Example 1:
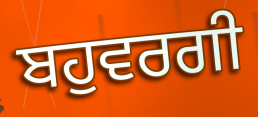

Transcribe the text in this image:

ਬਹੁਵਰਗੀ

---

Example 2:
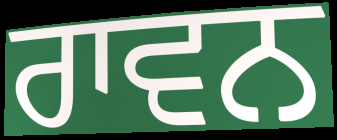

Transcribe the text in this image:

ਰਾਵਨ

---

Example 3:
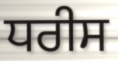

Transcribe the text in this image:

ਧਰੀਸ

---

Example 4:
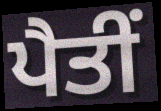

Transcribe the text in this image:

ਪੈਤੀਂ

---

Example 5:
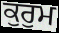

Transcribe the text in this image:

ਕੁਰੁਮ